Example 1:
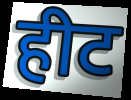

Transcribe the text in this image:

हीट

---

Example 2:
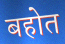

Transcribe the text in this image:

बहोत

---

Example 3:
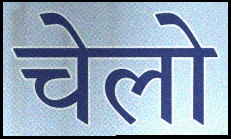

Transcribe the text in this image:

चेलो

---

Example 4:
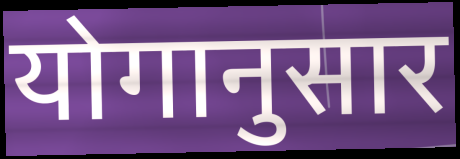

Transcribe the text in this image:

योगानुसार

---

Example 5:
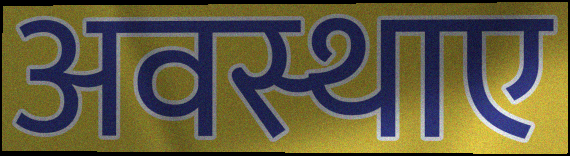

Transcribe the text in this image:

अवस्थाए